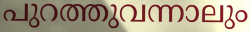
പുറത്തുവന്നാലും